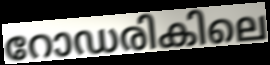
റോഡരികിലെ